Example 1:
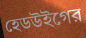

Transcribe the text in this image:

হেডউইগের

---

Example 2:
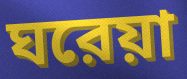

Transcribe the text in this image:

ঘরেয়া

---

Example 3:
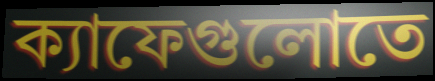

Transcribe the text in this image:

ক্যাফেগুলোতে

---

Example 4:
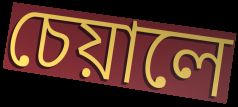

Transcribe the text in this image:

চেয়ালে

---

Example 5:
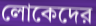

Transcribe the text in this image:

লোকেদের